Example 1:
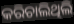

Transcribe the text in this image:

କରିଚାଲିଥିଲି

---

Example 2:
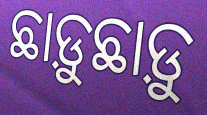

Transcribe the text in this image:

ଛାଡ଼ୁଛାଡ଼ୁ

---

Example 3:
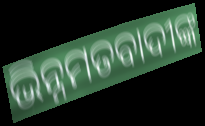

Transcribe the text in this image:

ଭିନ୍ନମତବାଦୀଙ୍କ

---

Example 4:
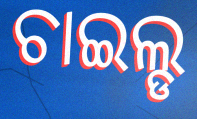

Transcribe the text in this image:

ଚାଇଲ୍ଡ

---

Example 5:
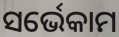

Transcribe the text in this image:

ସର୍ଭେକାମ